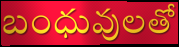
బంధువులతో